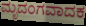
ಮೃದಂಗವಾದಕ